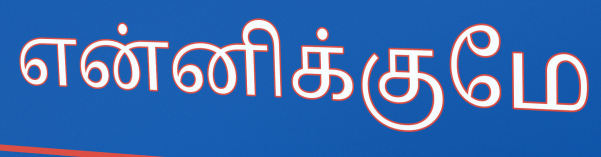
என்னிக்குமே